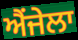
ਐਂਜੇਲਾ